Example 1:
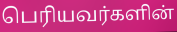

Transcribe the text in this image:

பெரியவர்களின்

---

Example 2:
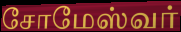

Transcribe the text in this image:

சோமேஸ்வர்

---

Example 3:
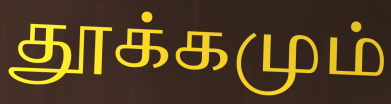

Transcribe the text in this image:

தூக்கமும்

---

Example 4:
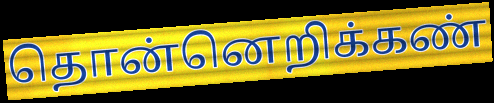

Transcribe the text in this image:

தொன்னெறிக்கண்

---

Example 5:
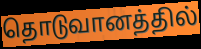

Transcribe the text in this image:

தொடுவானத்தில்